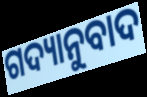
ଗଦ୍ୟାନୁବାଦ